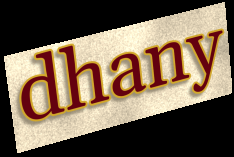
dhany